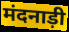
मंदनाड़ी